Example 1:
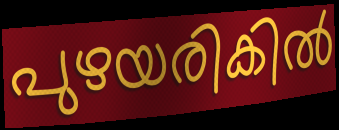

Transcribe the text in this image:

പുഴയരികിൽ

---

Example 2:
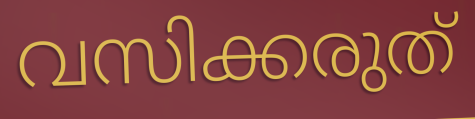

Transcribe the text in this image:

വസിക്കരുത്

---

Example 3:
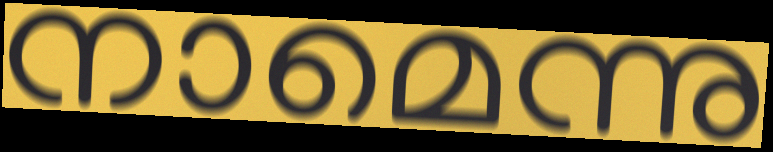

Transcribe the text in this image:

നാമെന്നു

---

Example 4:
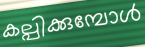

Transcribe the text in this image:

കല്പിക്കുമ്പോൾ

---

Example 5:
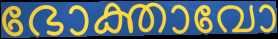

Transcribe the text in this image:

ഭോക്താവോ